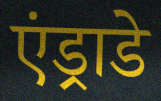
एंड्राडे